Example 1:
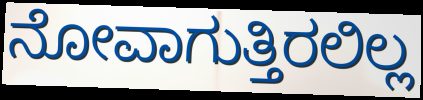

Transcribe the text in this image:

ನೋವಾಗುತ್ತಿರಲಿಲ್ಲ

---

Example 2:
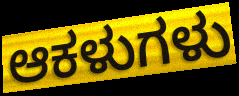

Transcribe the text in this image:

ಆಕಳುಗಳು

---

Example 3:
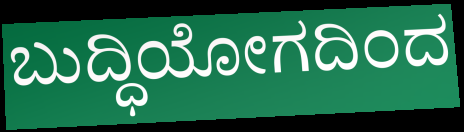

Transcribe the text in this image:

ಬುದ್ಧಿಯೋಗದಿಂದ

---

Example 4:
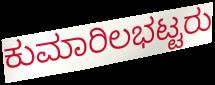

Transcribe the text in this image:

ಕುಮಾರಿಲಭಟ್ಟರು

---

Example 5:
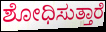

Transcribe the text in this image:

ಶೋಧಿಸುತ್ತಾರೆ